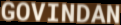
GOVINDAN